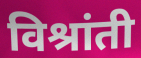
विश्रांती